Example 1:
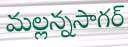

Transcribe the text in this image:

మల్లన్నసాగర్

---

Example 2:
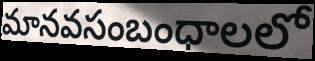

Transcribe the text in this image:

మానవసంబంధాలలో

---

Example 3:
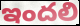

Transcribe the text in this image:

ఇందలి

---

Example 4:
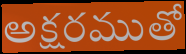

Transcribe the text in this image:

అక్షరముతో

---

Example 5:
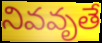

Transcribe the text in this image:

నివవృతే